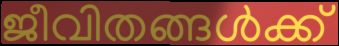
ജീവിതങ്ങൾക്ക്